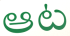
ఆట